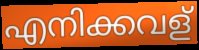
എനിക്കവള്